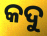
କଦୁ